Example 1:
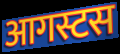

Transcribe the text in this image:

आगस्टस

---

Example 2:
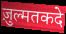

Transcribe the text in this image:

ज़ुल्मतकदे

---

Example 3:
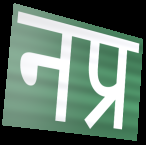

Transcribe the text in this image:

नप्र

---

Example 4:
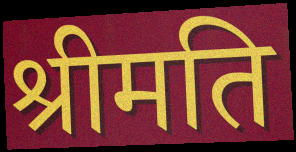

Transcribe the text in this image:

श्रीमति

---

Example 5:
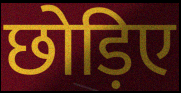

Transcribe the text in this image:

छोड़िए